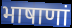
भाषाणां